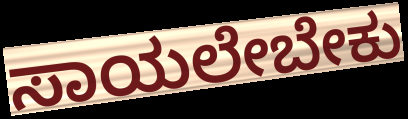
ಸಾಯಲೇಬೇಕು